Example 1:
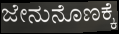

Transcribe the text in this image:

ಜೇನುನೊಣಕ್ಕೆ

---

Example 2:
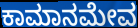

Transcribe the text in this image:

ಕಾಮಾನಮೇವ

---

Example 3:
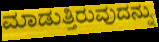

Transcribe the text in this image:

ಮಾಡುತ್ತಿರುವುದನ್ನು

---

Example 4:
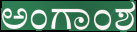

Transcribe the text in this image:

ಅಂಗಾಂಶ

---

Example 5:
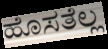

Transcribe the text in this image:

ಹೊಸತೆಲ್ಲ